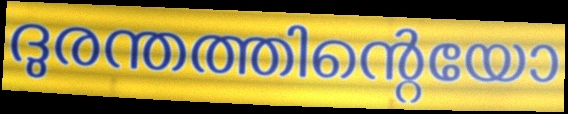
ദുരന്തത്തിന്റെയോ